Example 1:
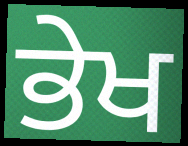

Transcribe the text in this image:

ਭੇਖ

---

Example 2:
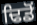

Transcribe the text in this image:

ਢਿਡੋਂ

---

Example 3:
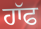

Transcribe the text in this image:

ਹਾੱਫ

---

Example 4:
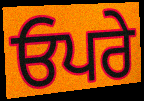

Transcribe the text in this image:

ਓਪਰੇ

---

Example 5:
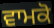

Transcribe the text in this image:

ਵਾਮਕੋ